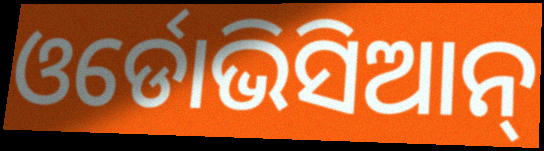
ଓର୍ଡୋଭିସିଆନ୍